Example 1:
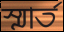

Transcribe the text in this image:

স্মার্ত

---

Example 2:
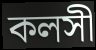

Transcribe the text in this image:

কলসী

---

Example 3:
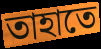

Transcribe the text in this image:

তাহাতে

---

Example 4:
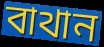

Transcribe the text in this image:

বাথান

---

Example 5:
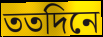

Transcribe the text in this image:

ততদিনে